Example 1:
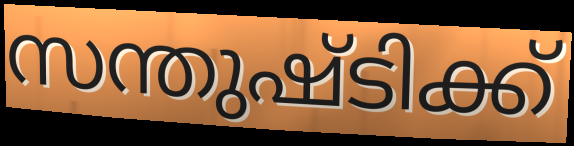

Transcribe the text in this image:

സന്തുഷ്ടിക്ക്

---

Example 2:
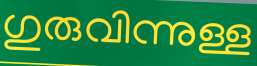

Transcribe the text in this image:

ഗുരുവിന്നുള്ള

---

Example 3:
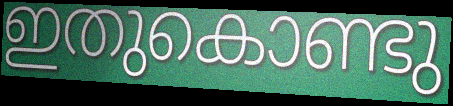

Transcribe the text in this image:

ഇതുകൊണ്ടു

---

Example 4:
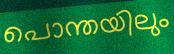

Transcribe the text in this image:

പൊന്തയിലും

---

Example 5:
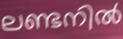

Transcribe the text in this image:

ലണ്ടനിൽ